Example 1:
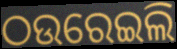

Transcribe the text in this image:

ଠଉରେଇଲି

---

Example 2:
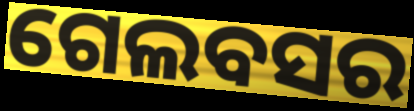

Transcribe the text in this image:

ଗେଲବସର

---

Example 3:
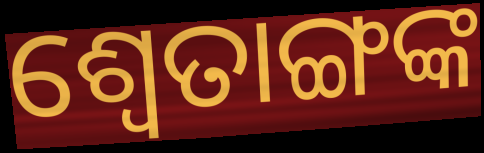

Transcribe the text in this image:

ଶ୍ୱେତାଙ୍ଗଙ୍କ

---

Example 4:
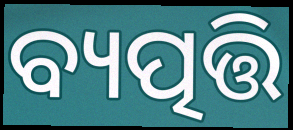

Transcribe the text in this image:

ବ୍ୟତ୍ପତ୍ତି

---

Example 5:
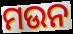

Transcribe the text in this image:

ମଉନ